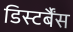
डिस्टर्बैंस